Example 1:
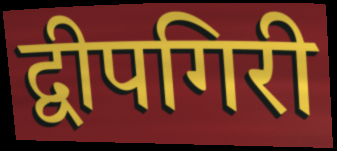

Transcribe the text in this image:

द्वीपगिरी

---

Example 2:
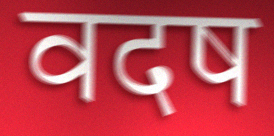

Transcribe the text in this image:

वदष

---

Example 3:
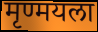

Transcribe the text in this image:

मृण्मयला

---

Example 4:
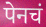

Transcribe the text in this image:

पेनचं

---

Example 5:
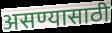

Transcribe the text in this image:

असण्यासाठी